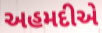
અહમદીએ